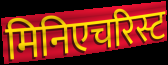
मिनिएचरिस्ट